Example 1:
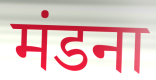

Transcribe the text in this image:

मंडना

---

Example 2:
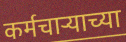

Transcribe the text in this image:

कर्मचाऱ्याच्या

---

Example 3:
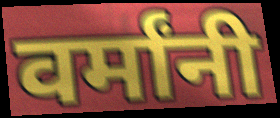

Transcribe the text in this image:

वर्मांनी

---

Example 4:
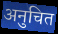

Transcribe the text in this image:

अनुचित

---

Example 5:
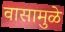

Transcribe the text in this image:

वासामुळे